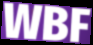
WBF